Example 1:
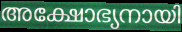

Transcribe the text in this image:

അക്ഷോഭ്യനായി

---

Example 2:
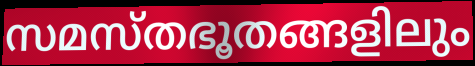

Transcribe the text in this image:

സമസ്തഭൂതങ്ങളിലും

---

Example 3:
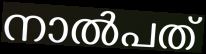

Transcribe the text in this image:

നാൽപത്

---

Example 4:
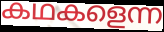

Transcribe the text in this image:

കഥകളെന്ന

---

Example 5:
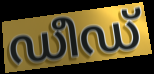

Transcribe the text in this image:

ഡീഡ്